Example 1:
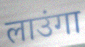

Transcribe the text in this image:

लाउंगा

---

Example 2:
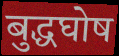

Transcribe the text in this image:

बुद्धघोष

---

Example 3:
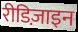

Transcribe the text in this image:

रीडिज़ाइन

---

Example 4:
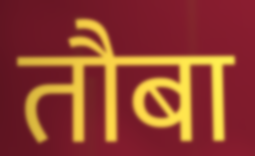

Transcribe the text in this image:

तौबा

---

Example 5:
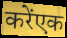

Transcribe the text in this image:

करेंएक